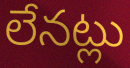
లేనట్లు